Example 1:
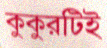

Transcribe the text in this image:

কুকুরটিই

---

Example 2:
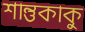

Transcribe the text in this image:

শান্তুকাকু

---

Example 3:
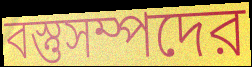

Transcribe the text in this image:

বস্তুসম্পদের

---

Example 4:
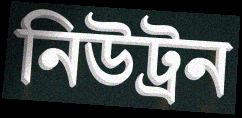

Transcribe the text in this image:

নিউট্রন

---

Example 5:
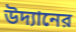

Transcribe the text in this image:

উদ্যানের